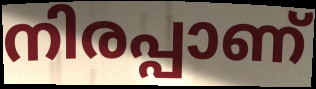
നിരപ്പാണ്